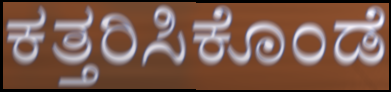
ಕತ್ತರಿಸಿಕೊಂಡೆ